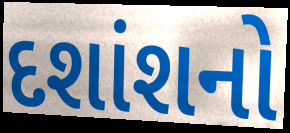
દશાંશનો